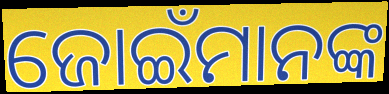
ଜୋଇଁମାନଙ୍କ